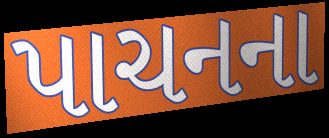
પાચનના